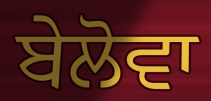
ਬੇਲੋਵਾ